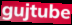
gujtube